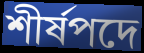
শীর্ষপদে